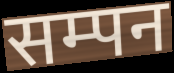
सम्पन